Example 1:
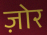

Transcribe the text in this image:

ज़ोर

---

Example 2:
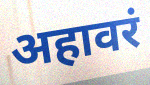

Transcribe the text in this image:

अहावरं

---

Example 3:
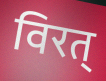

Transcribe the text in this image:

विरत्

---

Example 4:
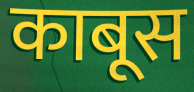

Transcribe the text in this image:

काबूस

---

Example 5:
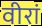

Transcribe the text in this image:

वीरां